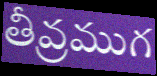
తీవ్రముగ